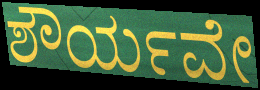
ಶೌರ್ಯವೇ